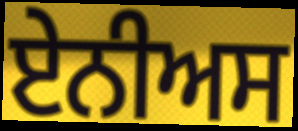
ਏਨੀਅਸ